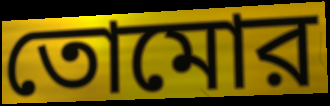
তোমোর